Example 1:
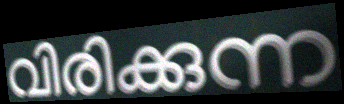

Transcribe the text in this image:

വിരിക്കുന്ന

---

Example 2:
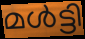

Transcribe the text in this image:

മൾട്ടി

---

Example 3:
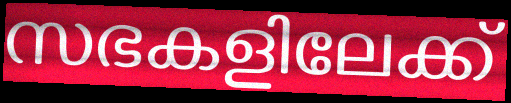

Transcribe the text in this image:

സഭകളിലേക്ക്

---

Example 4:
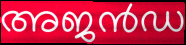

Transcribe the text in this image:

അജൻഡ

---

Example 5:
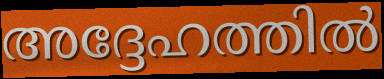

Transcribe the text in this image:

അദ്ദേഹത്തിൽ